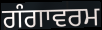
ਗੰਗਾਵਰਮ